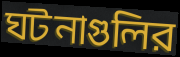
ঘটনাগুলির